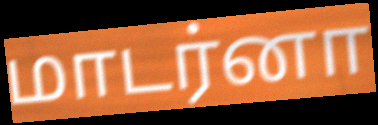
மாடர்னா